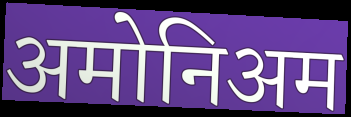
अमोनिअम